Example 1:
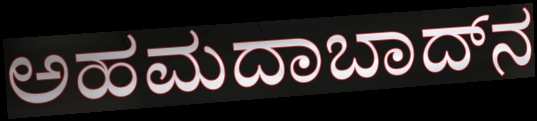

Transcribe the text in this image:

ಅಹಮದಾಬಾದ್‌ನ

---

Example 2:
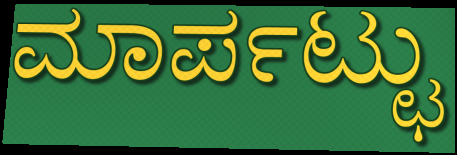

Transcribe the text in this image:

ಮಾರ್ಪಟ್ಟು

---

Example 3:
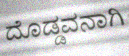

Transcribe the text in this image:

ದೊಡ್ಡವನಾಗಿ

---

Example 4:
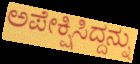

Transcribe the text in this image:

ಅಪೇಕ್ಷಿಸಿದ್ದನ್ನು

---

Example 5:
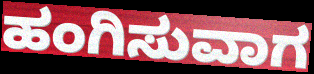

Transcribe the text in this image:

ಹಂಗಿಸುವಾಗ